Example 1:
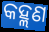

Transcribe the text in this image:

କହ୍ଲଣ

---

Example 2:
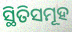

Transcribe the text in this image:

ସ୍ଥିତିସମୂହ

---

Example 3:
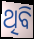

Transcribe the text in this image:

ଥିବି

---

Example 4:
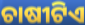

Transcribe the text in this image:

ଚାଷୀଟିଏ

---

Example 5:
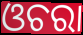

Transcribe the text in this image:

ଓଚରା